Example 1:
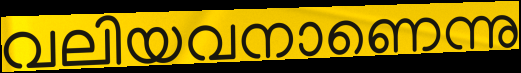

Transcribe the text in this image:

വലിയവനാണെന്നു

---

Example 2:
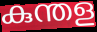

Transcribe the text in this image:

കുന്തള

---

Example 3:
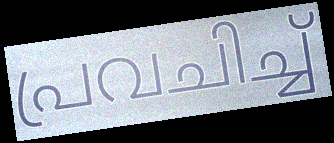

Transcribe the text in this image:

പ്രവചിച്ച്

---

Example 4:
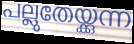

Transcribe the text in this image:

പല്ലുതേയ്ക്കുന്ന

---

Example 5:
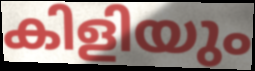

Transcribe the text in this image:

കിളിയും